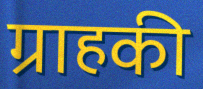
ग्राहकी